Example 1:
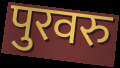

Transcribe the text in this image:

पुरवरु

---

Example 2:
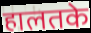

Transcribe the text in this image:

हालतके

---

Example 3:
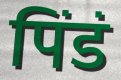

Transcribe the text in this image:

पिंडं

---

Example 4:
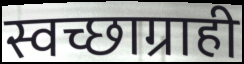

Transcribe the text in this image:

स्वच्छाग्राही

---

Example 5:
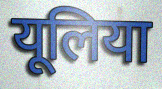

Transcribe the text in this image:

यूलिया